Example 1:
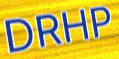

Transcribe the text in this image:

DRHP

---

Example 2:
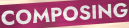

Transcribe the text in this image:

COMPOSING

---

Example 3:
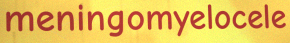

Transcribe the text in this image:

meningomyelocele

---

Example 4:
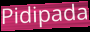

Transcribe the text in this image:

Pidipada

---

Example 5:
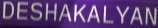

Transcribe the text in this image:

DESHAKALYAN